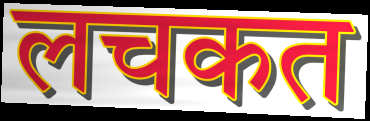
लचकत